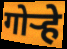
गोऱ्हे